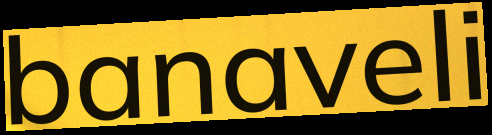
banaveli